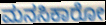
ಮನಸಿಕಾರೋ